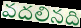
వదలినది